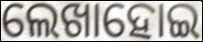
ଲେଖାହୋଇ